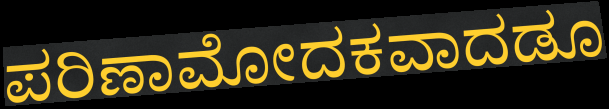
ಪರಿಣಾಮೋದಕವಾದಡೂ